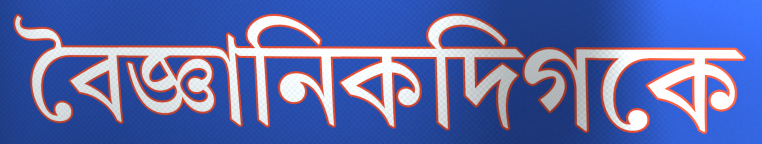
বৈজ্ঞানিকদিগকে